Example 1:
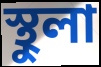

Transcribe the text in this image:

স্থুলা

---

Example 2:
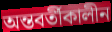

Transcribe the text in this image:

অন্তবর্তীকালীন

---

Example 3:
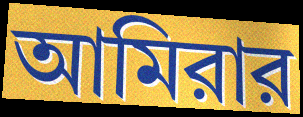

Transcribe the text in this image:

আমিরার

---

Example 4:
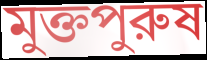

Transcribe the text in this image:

মুক্তপুরুষ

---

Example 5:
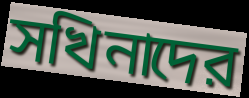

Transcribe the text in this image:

সখিনাদের